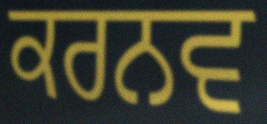
ਕਰਨਵ